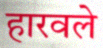
हारवले